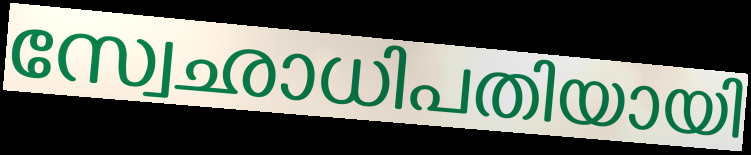
സ്വേഛാധിപതിയായി